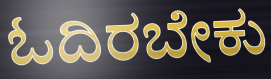
ಓದಿರಬೇಕು